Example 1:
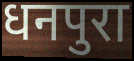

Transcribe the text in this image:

धनपुरा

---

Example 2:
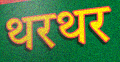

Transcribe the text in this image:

थरथर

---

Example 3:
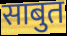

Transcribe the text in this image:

साबुत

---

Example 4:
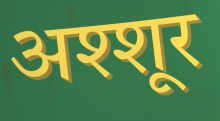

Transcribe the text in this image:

अश्शूर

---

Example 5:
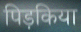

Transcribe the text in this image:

पिड़किया